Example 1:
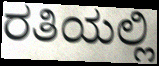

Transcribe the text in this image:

ರತಿಯಲ್ಲಿ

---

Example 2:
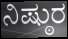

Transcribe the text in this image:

ನಿಷ್ಠುರ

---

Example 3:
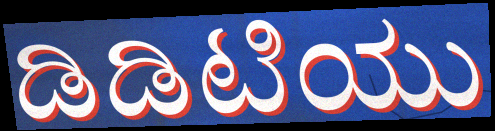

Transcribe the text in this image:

ಡಿಡಿಟಿಯು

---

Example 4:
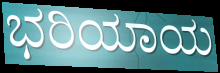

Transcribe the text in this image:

ಭರಿಯಾಯ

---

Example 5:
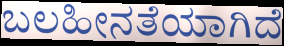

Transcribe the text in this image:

ಬಲಹೀನತೆಯಾಗಿದೆ